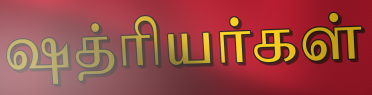
ஷத்ரியர்கள்